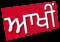
ਆਖੀਂ